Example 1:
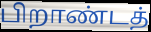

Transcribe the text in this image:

பிறாண்டத்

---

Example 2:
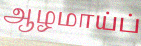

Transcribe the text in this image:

ஆழமாய்ப்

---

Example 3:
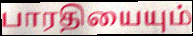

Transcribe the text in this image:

பாரதியையும்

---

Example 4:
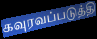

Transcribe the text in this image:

கவுரவப்படுத்தி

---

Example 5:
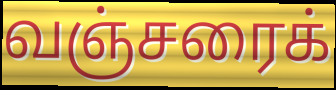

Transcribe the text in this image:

வஞ்சரைக்